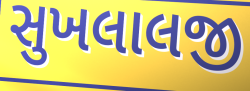
સુખલાલજી